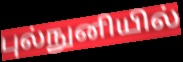
புல்நுனியில்